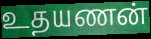
உதயணன்